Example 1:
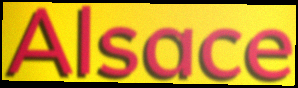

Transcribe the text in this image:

Alsace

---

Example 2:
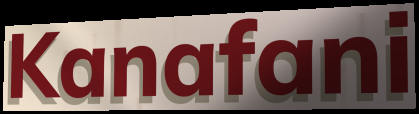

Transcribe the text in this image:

Kanafani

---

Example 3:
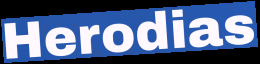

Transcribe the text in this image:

Herodias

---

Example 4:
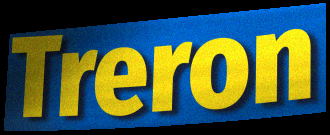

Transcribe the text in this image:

Treron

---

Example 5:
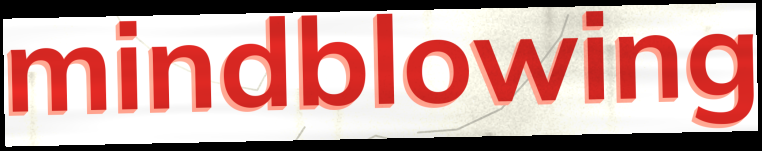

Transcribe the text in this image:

mindblowing